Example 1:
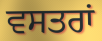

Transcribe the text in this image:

ਵਸਤਰਾਂ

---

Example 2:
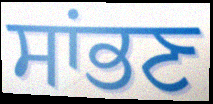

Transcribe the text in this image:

ਸਾਂਭਣ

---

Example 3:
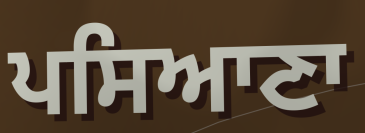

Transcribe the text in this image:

ਪਸਿਆਣਾ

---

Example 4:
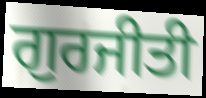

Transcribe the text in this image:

ਗੁਰਜੀਤੀ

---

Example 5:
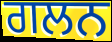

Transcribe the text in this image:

ਗਲਨ